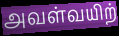
அவள்வயிற்